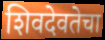
शिवदेवतेचा